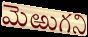
మెఱుగని